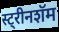
स्ट्रीनशॅम